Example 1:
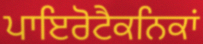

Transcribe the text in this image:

ਪਾਇਰੋਟੈਕਨਿਕਾਂ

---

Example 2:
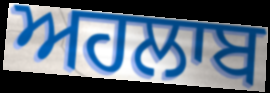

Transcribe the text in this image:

ਅਹਲਾਬ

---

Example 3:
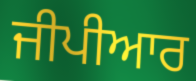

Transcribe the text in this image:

ਜੀਪੀਆਰ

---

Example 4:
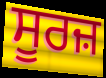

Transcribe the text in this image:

ਸੂਰਜ਼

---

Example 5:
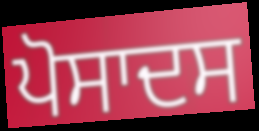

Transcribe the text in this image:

ਪੋਸਾਦਸ